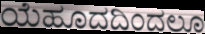
ಯೆಹೂದದಿಂದಲೂ